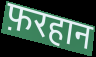
फ़रहान